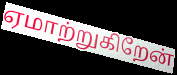
ஏமாற்றுகிறேன்